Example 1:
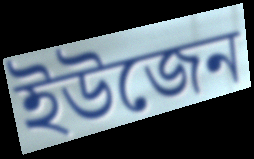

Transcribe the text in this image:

ইউজেন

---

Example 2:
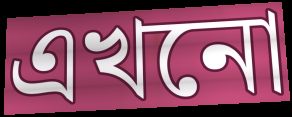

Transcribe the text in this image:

এখনো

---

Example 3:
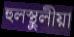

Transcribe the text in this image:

হুলস্থুলীয়া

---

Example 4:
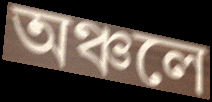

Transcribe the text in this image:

অঞ্চলে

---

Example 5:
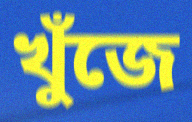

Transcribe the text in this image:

খুঁজে